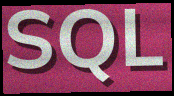
SQL